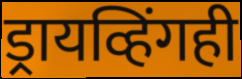
ड्रायव्हिंगही